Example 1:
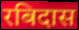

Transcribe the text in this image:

रबिदास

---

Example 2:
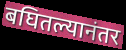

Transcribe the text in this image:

बघितल्यानंतर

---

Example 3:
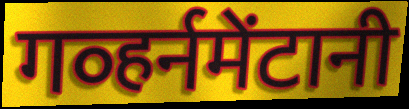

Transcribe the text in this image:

गव्हर्नमेंटानी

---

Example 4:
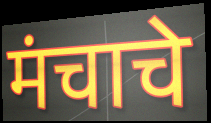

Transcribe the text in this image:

मंचाचे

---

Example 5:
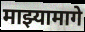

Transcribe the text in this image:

माझ्यामागे